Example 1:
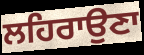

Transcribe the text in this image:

ਲਹਿਰਾਉਣਾ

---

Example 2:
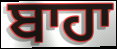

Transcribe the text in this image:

ਬਾਹਾ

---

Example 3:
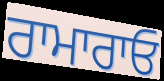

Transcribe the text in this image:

ਰਾਮਾਰਾਓ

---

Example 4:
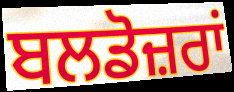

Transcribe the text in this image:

ਬਲਡੋਜ਼ਰਾਂ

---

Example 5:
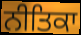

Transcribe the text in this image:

ਨੀਤਿਕਾ